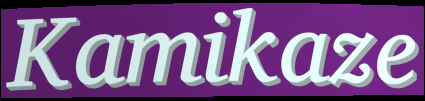
Kamikaze